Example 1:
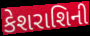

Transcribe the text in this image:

કેશરાશિની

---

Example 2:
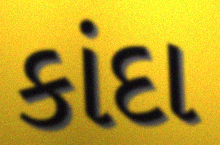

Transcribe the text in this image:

કાંદા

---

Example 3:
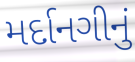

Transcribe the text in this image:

મર્દાનગીનું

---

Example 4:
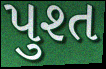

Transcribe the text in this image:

પુશ્ત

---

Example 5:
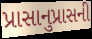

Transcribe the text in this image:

પ્રાસાનુપ્રાસની